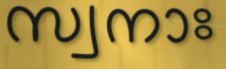
സ്വനാഃ